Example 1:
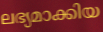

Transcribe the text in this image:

ലഭ്യമാക്കിയ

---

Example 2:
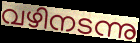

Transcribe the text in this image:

വഴിനടന്നു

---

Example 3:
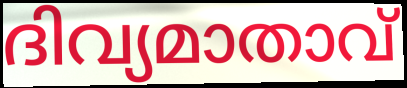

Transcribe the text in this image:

ദിവ്യമാതാവ്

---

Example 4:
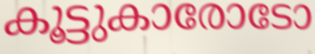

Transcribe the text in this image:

കൂട്ടുകാരോടോ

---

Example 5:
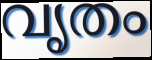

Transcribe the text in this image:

വൃതം